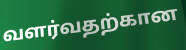
வளர்வதற்கான